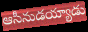
ఆసీనుడయ్యాడు